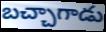
బచ్చాగాడు